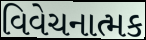
વિવેચનાત્મક